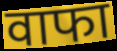
वाफा